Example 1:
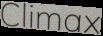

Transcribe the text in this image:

Climax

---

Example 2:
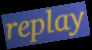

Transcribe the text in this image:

replay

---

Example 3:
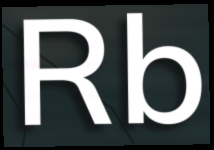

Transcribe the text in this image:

Rb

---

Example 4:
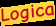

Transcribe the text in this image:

Logica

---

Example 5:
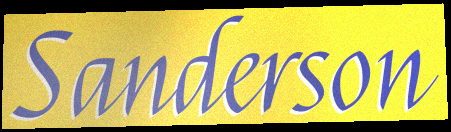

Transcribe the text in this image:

Sanderson